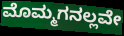
ಮೊಮ್ಮಗನಲ್ಲವೇ